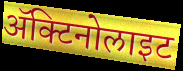
ॲक्टिनोलाइट